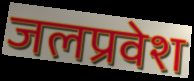
जलप्रवेश